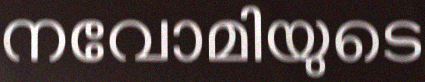
നവോമിയുടെ